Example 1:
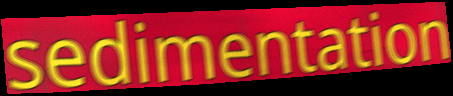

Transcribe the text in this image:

sedimentation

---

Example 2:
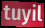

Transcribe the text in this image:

tuyil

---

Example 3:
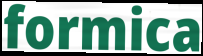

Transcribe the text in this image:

formica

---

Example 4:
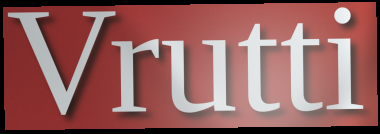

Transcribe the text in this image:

Vrutti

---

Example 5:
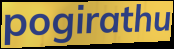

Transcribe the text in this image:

pogirathu